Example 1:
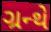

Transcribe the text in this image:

ગ્રન્થે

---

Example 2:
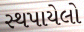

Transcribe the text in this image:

સ્થપાયેલો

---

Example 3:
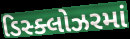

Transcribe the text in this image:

ડિસ્ક્લોઝરમાં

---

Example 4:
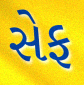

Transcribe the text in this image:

સેફ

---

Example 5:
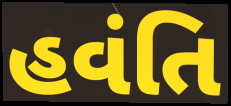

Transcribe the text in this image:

હવંતિ